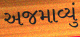
અજમાવ્યું